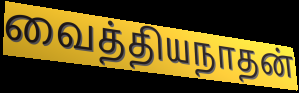
வைத்தியநாதன்